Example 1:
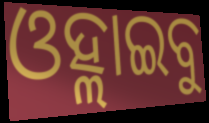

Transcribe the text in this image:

ଓହ୍ଲାଇବୁ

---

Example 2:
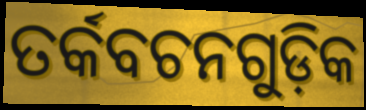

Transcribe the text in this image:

ତର୍କବଚନଗୁଡ଼ିକ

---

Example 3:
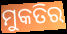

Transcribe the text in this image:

ମୁକତିର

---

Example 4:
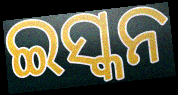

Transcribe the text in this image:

ଇସ୍କନ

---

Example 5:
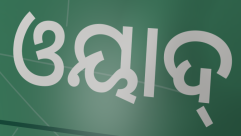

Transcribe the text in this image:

ଓୟାଦ୍